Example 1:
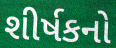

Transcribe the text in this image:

શીર્ષકનો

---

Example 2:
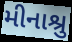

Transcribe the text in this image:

મીનાશ્રુ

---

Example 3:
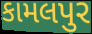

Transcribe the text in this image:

કામલપુર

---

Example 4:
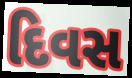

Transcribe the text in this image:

દિવસ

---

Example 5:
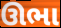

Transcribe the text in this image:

ઊભા